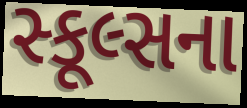
સ્કૂલ્સના